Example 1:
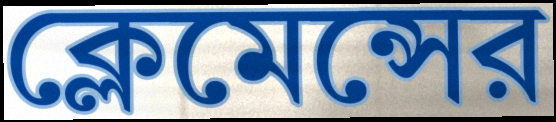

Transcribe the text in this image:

ক্লেমেন্সের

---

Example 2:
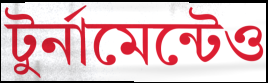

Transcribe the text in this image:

টুর্নামেন্টেও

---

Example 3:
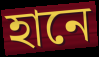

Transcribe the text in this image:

হানে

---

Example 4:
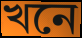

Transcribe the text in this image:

খনে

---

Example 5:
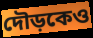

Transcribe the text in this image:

দৌড়কেও